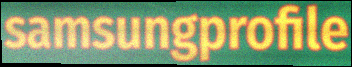
samsungprofile